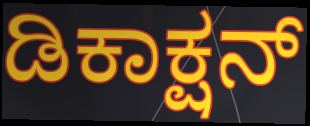
ಡಿಕಾಕ್ಷನ್